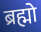
ब्रह्मो